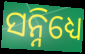
ସନ୍ନିଧ୍ୟେ